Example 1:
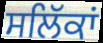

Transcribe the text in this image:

ਸਲਿੱਕਾਂ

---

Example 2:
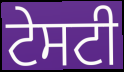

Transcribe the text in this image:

ਟੇਸਟੀ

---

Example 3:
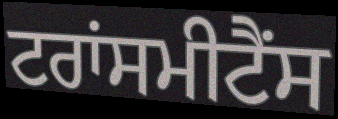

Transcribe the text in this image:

ਟਰਾਂਸਮੀਟੈਂਸ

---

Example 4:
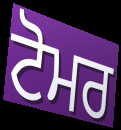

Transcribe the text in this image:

ਟੋਮਰ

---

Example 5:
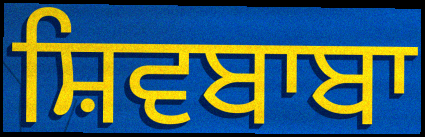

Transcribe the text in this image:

ਸ਼ਿਵਬਾਬਾ